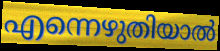
എന്നെഴുതിയാൽ